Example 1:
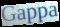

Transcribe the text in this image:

Gappa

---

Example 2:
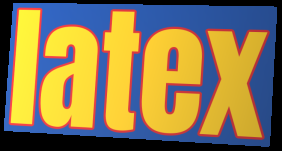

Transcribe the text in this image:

latex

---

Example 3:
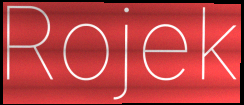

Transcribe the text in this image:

Rojek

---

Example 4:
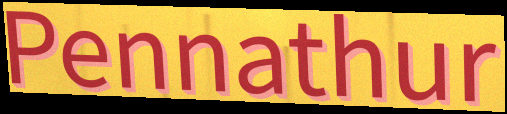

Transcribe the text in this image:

Pennathur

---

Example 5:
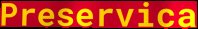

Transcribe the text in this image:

Preservica